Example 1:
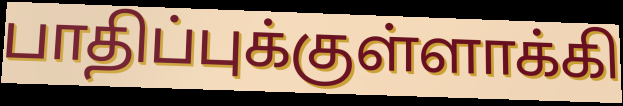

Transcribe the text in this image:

பாதிப்புக்குள்ளாக்கி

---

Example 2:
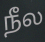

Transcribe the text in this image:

நீல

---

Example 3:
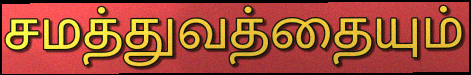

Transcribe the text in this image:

சமத்துவத்தையும்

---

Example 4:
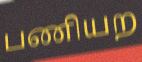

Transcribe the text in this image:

பணியற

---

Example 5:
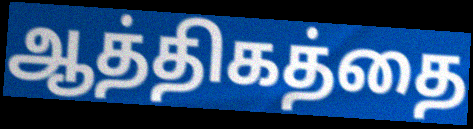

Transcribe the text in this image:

ஆத்திகத்தை